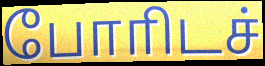
போரிடச்